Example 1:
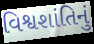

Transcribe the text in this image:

વિશ્વશાંતિનું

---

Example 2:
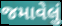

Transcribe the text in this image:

જમાવેલું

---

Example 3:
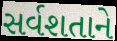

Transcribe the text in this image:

સર્વશતાને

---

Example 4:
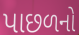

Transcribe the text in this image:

પાછળનો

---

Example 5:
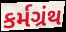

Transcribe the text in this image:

કર્મગ્રંથ